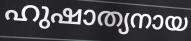
ഹുഷാത്യനായ